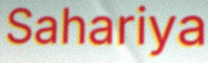
Sahariya